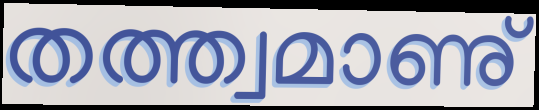
തത്ത്വമാണു്